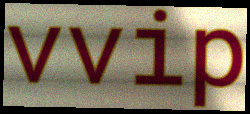
vvip